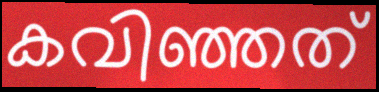
കവിഞ്ഞത്